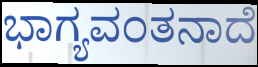
ಭಾಗ್ಯವಂತನಾದೆ